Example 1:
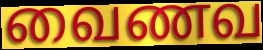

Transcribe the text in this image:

வைணவ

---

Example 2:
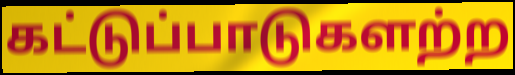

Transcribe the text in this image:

கட்டுப்பாடுகளற்ற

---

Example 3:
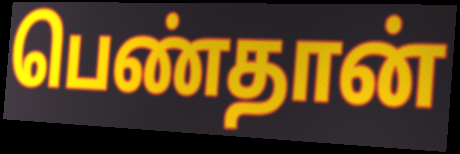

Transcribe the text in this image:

பெண்தான்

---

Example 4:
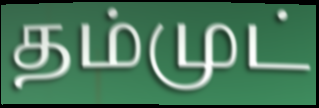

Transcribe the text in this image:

தம்முட்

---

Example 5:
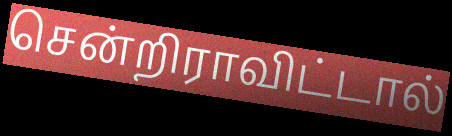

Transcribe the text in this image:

சென்றிராவிட்டால்